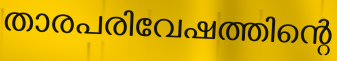
താരപരിവേഷത്തിന്റെ